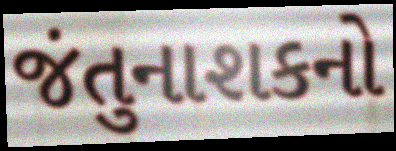
જંતુનાશકનો